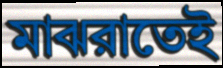
মাঝরাতেই